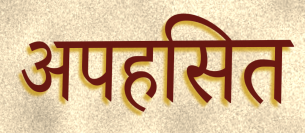
अपहसित